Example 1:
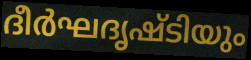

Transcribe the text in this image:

ദീർഘദൃഷ്ടിയും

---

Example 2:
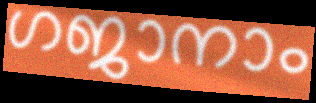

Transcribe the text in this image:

ഗജാനാം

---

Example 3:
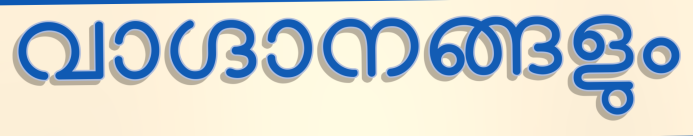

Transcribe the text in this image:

വാഗ്ദാനങ്ങളും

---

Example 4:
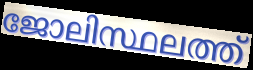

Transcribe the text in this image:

ജോലിസ്ഥലത്ത്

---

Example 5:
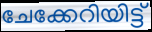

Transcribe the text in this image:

ചേക്കേറിയിട്ട്